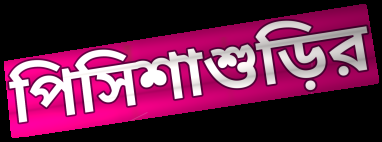
পিসিশাশুড়ির